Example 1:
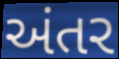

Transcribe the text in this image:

અંતર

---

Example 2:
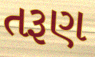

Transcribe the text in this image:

તરૂણ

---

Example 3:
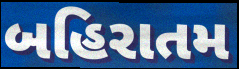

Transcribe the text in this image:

બહિરાતમ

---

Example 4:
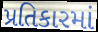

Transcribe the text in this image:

પ્રતિકારમાં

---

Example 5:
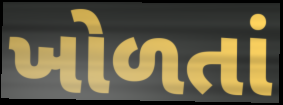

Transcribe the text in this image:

ખોળતાં